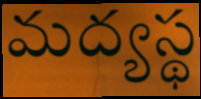
మద్యస్థ